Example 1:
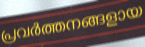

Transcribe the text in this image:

പ്രവർത്തനങ്ങളായ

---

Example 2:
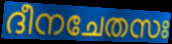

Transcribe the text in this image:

ദീനചേതസഃ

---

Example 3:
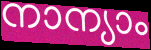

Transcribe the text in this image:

നാന്യാം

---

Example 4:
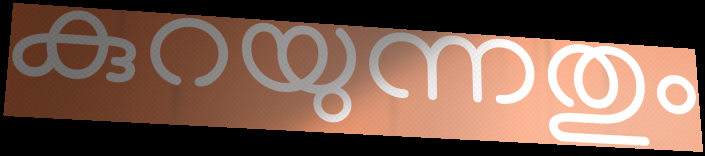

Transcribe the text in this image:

കുറയുന്നതും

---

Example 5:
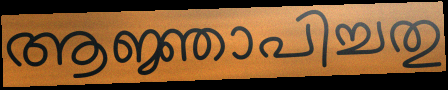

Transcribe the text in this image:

ആജ്ഞാപിച്ചതു